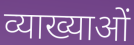
व्याख्याओं